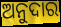
ଅନୁଦାର